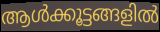
ആൾക്കൂട്ടങ്ങളിൽ